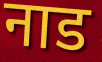
नाड